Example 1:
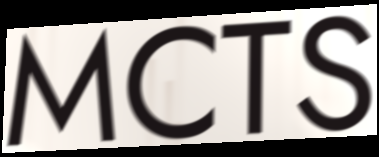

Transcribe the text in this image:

MCTS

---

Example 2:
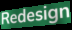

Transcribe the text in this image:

Redesign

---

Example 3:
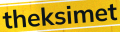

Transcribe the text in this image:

theksimet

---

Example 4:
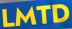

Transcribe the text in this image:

LMTD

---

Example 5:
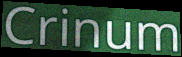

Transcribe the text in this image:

Crinum